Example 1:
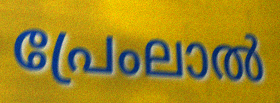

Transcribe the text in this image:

പ്രേംലാൽ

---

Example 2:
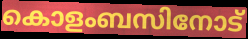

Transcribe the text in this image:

കൊളംബസിനോട്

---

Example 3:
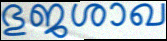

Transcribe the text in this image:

ഭുജശാഖ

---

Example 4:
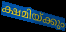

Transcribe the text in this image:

ക്ഷമിയ്ക്കും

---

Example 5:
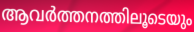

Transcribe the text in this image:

ആവർത്തനത്തിലൂടെയും